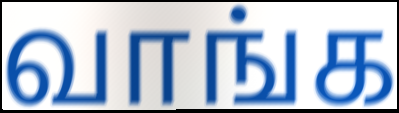
வாங்க